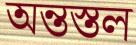
অন্তস্তল